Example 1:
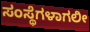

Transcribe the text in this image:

ಸಂಸ್ಥೆಗಳಾಗಲೀ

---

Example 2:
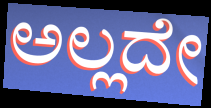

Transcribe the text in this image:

ಅಲ್ಲದೇ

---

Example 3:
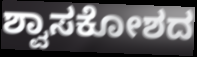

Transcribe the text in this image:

ಶ್ವಾಸಕೋಶದ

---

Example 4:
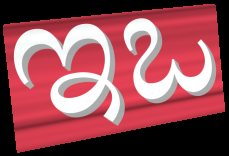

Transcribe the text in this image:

ಇಒ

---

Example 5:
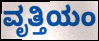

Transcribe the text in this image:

ವೃತ್ತಿಯಂ